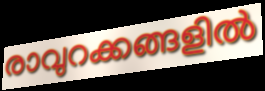
രാവുറക്കങ്ങളിൽ